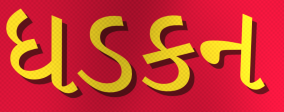
ધડકન